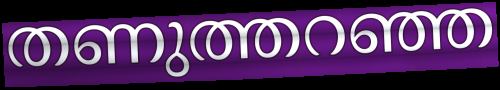
തണുത്തറഞ്ഞ